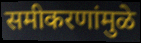
समीकरणांमुळे